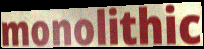
monolithic